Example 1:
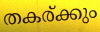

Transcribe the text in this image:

തകര്ക്കും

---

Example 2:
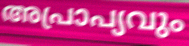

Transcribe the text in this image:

അപ്രാപ്യവും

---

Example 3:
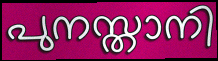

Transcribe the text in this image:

പുനസ്താനി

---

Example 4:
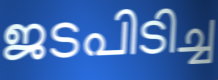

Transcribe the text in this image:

ജടപിടിച്ച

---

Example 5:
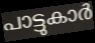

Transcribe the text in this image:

പാട്ടുകാർ